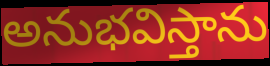
అనుభవిస్తాను